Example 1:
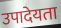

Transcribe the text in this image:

उपादेयता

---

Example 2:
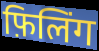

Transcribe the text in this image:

फ़िलिंग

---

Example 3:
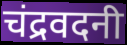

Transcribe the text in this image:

चंद्रवदनी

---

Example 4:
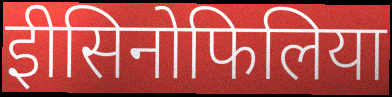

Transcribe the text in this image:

ईोसिनोफिलिया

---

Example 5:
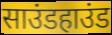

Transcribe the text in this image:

साउंडहाउंड